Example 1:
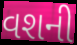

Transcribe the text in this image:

વશની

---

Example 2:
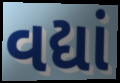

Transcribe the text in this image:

વદ્યાં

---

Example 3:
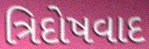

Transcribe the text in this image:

ત્રિદોષવાદ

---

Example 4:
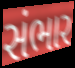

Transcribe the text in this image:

સંભાર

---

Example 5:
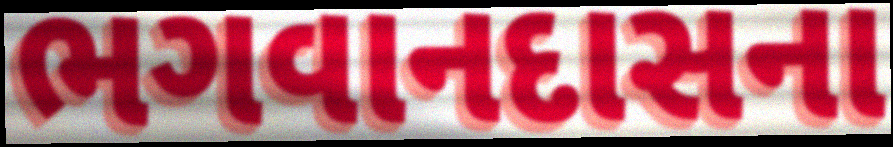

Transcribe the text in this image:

ભગવાનદાસના